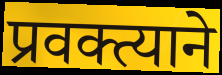
प्रवक्त्याने